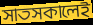
সাতসকালেই